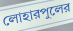
লোহারপুলের